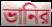
ভানির